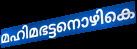
മഹിമഭട്ടനൊഴികെ